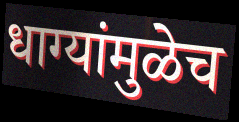
धाग्यांमुळेच